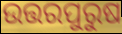
ଉତ୍ତରପୁରୁଷ